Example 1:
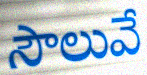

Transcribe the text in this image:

సౌలువే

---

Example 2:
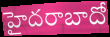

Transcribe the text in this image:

హైదరాబాదో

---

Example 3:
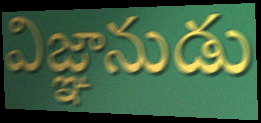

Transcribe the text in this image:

విజ్ఞానుడు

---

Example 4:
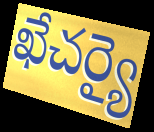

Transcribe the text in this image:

ఖేచర్యై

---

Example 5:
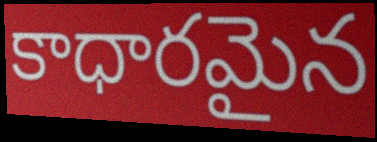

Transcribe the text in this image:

కాధారమైన